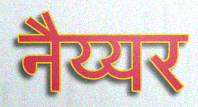
नैय्यर